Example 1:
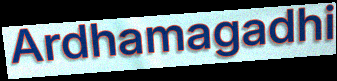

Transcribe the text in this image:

Ardhamagadhi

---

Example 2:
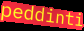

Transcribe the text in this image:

peddinti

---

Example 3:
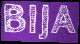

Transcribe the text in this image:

BIJA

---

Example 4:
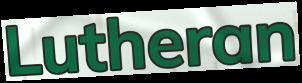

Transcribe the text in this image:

Lutheran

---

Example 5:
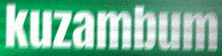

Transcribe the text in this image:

kuzambum